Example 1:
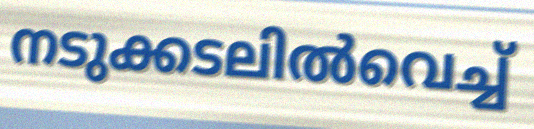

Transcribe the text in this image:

നടുക്കടലിൽവെച്ച്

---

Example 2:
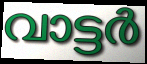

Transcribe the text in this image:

വാട്ടർ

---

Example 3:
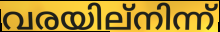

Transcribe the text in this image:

വരയില്നിന്ന്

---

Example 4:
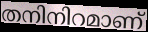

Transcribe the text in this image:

തനിനിറമാണ്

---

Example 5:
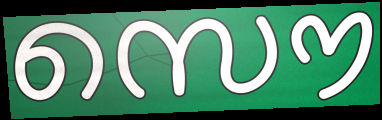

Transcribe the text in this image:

സൌ